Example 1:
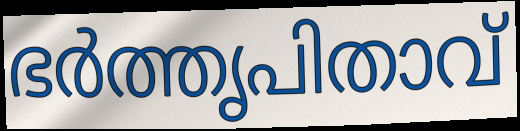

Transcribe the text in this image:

ഭർത്തൃപിതാവ്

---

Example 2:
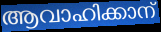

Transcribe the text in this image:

ആവാഹിക്കാന്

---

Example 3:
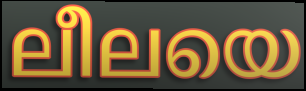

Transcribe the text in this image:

ലീലയെ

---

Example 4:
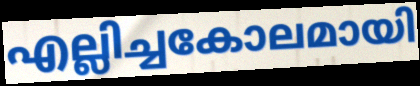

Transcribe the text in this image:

എല്ലിച്ചകോലമായി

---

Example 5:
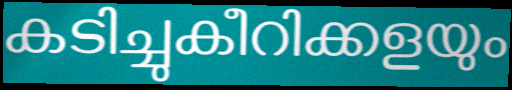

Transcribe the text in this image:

കടിച്ചുകീറിക്കളയും